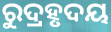
ରୁଦ୍ରହୃଦୟ